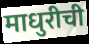
माधुरीची